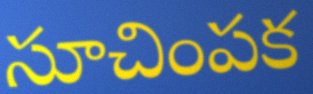
సూచింపక